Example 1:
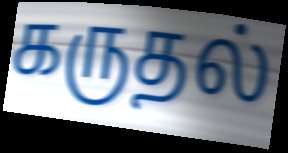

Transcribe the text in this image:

கருதல்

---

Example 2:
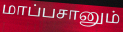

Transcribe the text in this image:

மாப்பசானும்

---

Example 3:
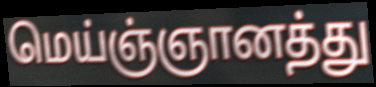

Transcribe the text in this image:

மெய்ஞ்ஞானத்து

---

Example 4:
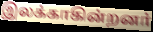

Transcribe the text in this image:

இலக்காகின்றனர்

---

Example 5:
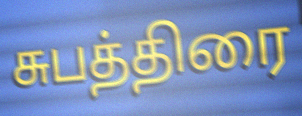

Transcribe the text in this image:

சுபத்திரை